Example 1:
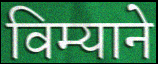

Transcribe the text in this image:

विम्याने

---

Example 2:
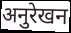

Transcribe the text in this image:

अनुरेखन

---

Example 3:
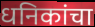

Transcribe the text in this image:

धनिकांचा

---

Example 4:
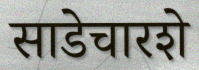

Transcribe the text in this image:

साडेचारशे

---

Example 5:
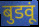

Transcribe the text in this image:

बुडवूं